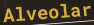
Alveolar